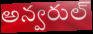
అన్వరుల్